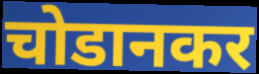
चोडानकर